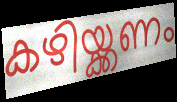
കഴിയ്ക്കണം